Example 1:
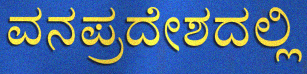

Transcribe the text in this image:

ವನಪ್ರದೇಶದಲ್ಲಿ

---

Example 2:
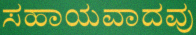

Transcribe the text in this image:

ಸಹಾಯವಾದವು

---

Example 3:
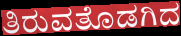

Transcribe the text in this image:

ತಿರುವತೊಡಗಿದ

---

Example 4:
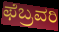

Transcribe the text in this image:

ಫೆಬ್ರವರಿ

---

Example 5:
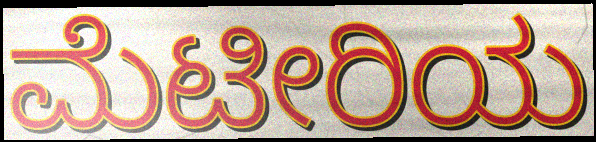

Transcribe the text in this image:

ಮೆಟೀರಿಯ